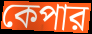
কেপার